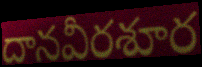
దానవీరశూర